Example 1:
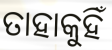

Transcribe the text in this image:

ତାହାକୁହିଁ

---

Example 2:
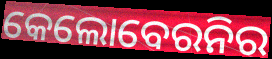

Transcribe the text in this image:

କେଲୋବେରନିର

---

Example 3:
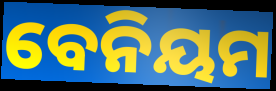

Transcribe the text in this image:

ବେନିୟମ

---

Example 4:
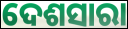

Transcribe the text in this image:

ଦେଶସାରା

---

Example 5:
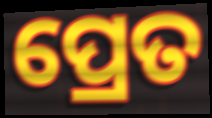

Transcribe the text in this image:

ପ୍ରେତ